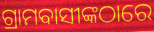
ଗ୍ରାମବାସୀଙ୍କଠାରେ